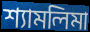
শ্যামলিমা